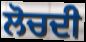
ਲੋਚਦੀ